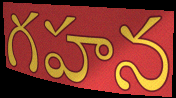
గహన